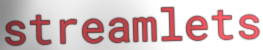
streamlets